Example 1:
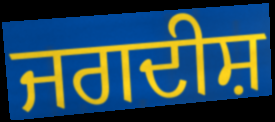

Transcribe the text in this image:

ਜਗਦੀਸ਼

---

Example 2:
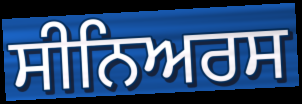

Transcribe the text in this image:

ਸੀਨਿਅਰਸ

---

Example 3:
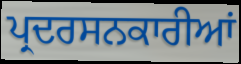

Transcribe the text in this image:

ਪ੍ਰਦਰਸਨਕਾਰੀਆਂ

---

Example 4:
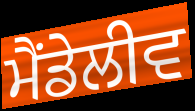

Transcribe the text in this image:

ਮੈਂਡੇਲੀਵ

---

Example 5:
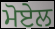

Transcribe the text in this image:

ਮੋਏਲ